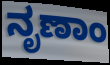
ನೃಣಾಂ